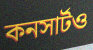
কনসার্টও